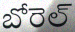
బోరెల్